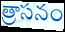
త్రాసనం